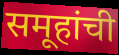
समूहांची